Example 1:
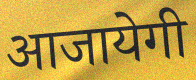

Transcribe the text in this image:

आजायेगी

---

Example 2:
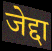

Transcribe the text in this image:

जेद्दा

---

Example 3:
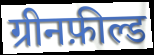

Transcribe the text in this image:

ग्रीनफ़ील्ड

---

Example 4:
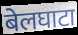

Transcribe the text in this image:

बेलघाटा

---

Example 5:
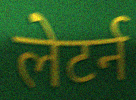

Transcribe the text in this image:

लेटर्न